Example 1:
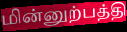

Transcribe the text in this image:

மின்னுற்பத்தி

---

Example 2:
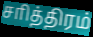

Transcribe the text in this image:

சரித்திரம்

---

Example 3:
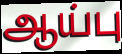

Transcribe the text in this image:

ஆய்பு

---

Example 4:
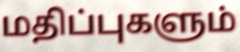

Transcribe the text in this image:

மதிப்புகளும்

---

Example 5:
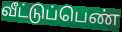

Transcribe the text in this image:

வீட்டுப்பெண்